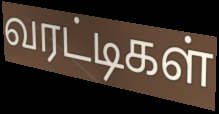
வரட்டிகள்